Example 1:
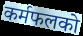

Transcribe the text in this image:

कर्मफलको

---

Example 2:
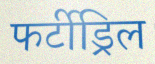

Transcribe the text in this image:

फर्टीड्रिल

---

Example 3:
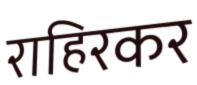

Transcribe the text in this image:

राहिरकर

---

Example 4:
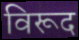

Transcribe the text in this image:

विरूद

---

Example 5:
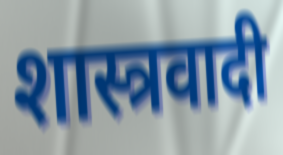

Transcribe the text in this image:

शास्त्रवादी